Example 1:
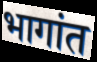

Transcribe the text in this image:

भागांत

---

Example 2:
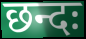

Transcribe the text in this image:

छन्दः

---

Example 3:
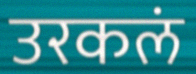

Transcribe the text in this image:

उरकलं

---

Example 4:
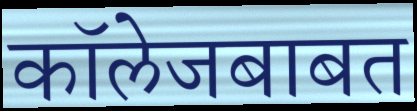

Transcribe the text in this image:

कॉलेजबाबत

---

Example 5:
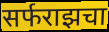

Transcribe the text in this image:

सर्फराझचा